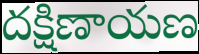
దక్షిణాయణ